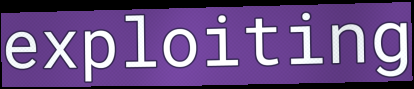
exploiting